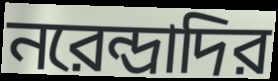
নরেন্দ্রাদির